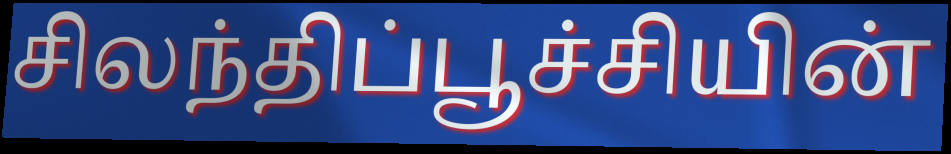
சிலந்திப்பூச்சியின்